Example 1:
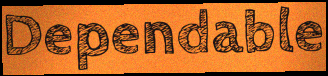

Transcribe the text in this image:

Dependable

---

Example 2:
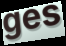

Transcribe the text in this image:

ges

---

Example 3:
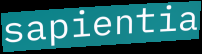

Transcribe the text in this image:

sapientia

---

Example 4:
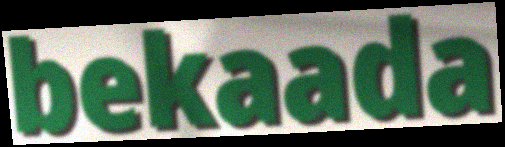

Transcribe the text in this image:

bekaada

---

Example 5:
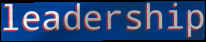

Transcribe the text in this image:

leadership